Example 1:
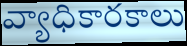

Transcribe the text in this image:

వ్యాధికారకాలు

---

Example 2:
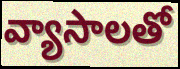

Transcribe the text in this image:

వ్యాసాలతో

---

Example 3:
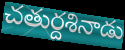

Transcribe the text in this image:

చతుర్దశినాడు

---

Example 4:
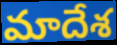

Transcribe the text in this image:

మాదేశ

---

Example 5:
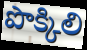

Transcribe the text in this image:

పొక్కిలి